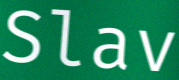
Slav